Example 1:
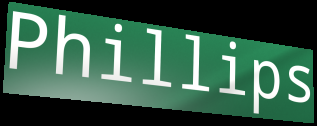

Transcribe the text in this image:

Phillips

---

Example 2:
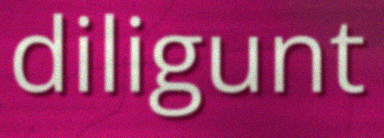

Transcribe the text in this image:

diligunt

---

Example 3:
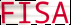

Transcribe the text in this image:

FISA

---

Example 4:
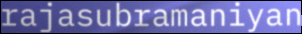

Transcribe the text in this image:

rajasubramaniyan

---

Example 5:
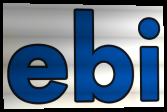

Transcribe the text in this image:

ebi